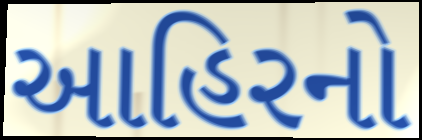
આહિરનો